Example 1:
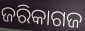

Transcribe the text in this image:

ଜରିକାଗଜ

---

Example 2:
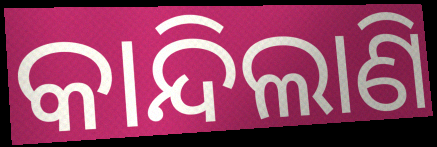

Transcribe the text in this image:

କାନ୍ଦିଲାଣି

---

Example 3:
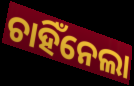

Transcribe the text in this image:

ଚାହିଁନେଲା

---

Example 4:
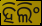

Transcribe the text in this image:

ହିଲିଂ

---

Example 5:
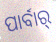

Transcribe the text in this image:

ପାର୍ବାର୍